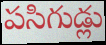
పసిగుడ్లు